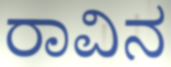
ರಾವಿನ